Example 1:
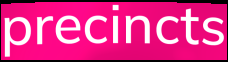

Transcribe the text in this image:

precincts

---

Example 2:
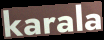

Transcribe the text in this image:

karala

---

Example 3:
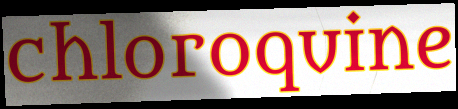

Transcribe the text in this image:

chloroquine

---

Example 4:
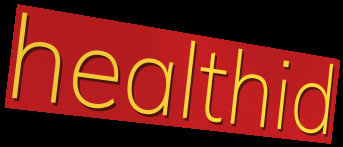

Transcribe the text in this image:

healthid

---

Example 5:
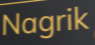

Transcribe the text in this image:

Nagrik